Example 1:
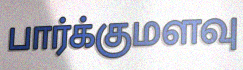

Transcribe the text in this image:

பார்க்குமளவு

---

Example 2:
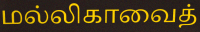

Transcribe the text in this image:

மல்லிகாவைத்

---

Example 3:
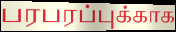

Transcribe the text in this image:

பரபரப்புக்காக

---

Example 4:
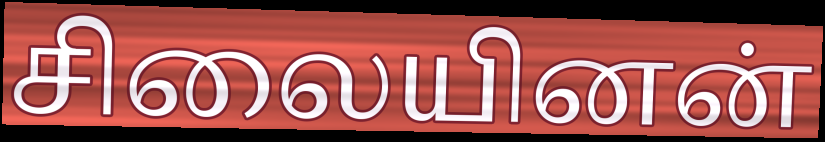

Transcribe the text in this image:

சிலையினன்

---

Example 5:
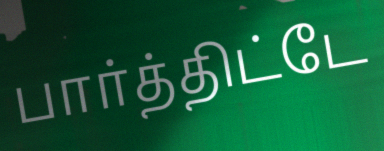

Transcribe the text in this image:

பார்த்திட்டே